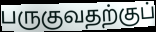
பருகுவதற்குப்